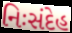
નિઃસંદેહ